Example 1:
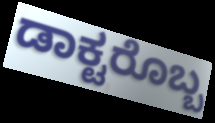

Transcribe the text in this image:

ಡಾಕ್ಟರೊಬ್ಬ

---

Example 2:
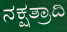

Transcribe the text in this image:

ನಕ್ಷತ್ರಾದಿ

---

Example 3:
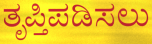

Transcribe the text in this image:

ತೃಪ್ತಿಪಡಿಸಲು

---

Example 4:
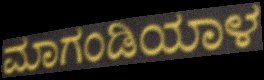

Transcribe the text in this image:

ಮಾಗಂಡಿಯಾಳ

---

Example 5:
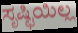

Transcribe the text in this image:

ಸೃಷ್ಟಿಯಿಲ್ಲ